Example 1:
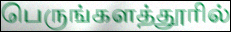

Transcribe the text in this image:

பெருங்களத்தூரில்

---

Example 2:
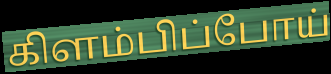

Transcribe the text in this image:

கிளம்பிப்போய்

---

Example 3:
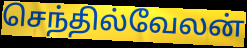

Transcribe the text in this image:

செந்தில்வேலன்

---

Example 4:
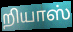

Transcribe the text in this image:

றியாஸ்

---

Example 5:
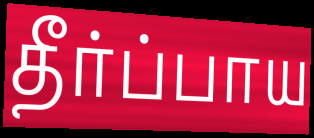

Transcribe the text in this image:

தீர்ப்பாய